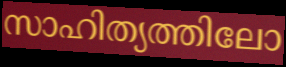
സാഹിത്യത്തിലോ